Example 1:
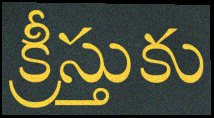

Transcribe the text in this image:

క్రీస్తుకు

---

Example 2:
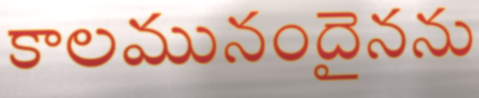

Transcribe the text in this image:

కాలమునందైనను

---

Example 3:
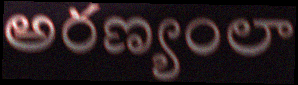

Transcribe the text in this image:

అరణ్యంలా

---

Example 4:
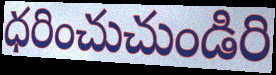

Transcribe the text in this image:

ధరించుచుండిరి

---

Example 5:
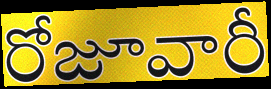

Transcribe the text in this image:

రోజూవారీ